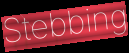
Stebbing